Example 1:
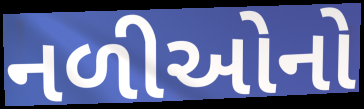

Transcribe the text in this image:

નળીઓનો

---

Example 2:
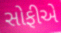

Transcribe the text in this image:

સોફીએ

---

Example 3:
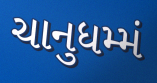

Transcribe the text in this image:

ચાનુધમ્મં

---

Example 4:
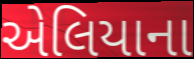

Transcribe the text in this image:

એલિયાના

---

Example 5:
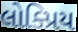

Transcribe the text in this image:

લોક્પ્રિય